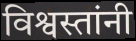
विश्वस्तांनी